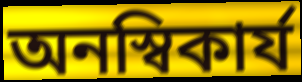
অনস্বিকার্য